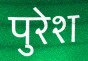
पुरेश